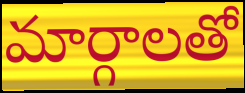
మార్గాలతో